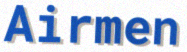
Airmen